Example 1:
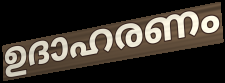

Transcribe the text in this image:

ഉദാഹരണം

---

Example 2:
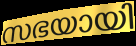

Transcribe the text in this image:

സഭയായി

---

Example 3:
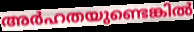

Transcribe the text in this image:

അർഹതയുണ്ടെങ്കിൽ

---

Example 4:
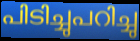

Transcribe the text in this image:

പിടിച്ചുപറിച്ചു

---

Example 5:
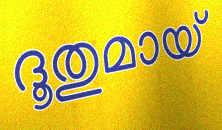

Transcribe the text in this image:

ദൂതുമായ്